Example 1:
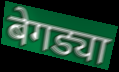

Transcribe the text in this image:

बेगड्या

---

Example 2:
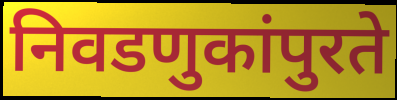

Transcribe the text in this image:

निवडणुकांपुरते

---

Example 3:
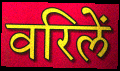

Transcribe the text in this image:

वरिलें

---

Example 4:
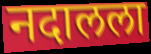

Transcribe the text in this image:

नदालला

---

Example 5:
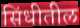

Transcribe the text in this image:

सिंधीतील